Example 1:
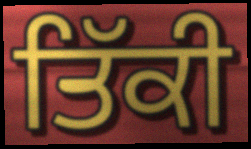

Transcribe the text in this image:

ਤਿੱਕੀ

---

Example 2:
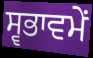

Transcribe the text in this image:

ਸ੍ਵਭਾਵਮੇਂ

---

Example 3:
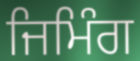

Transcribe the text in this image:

ਜਿਮਿੰਗ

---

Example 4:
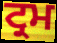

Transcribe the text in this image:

ਟ੍ਰਮ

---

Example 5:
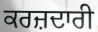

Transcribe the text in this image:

ਕਰਜ਼ਦਾਰੀ